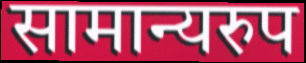
सामान्यरुप